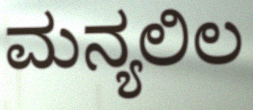
ಮನ್ಯಲಿಲ